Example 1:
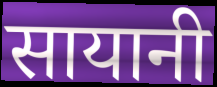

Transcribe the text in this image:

सायानी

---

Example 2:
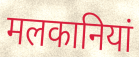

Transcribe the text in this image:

मलकानियां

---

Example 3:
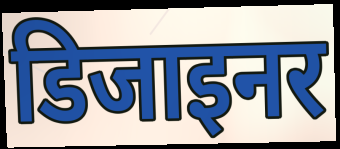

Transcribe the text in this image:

डिजाइनर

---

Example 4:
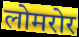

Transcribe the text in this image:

लोमरोर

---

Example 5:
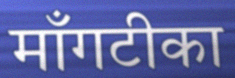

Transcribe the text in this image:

माँगटीका